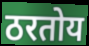
ठरतोय